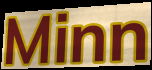
Minn